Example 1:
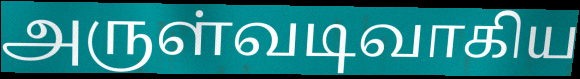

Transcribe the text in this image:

அருள்வடிவாகிய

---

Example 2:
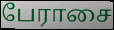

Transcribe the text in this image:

பேராசை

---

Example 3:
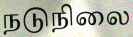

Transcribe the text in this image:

நடுநிலை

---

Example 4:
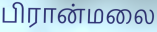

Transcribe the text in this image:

பிரான்மலை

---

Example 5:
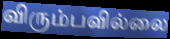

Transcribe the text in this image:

விரும்பவில்லை